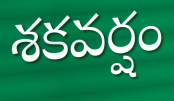
శకవర్షం